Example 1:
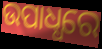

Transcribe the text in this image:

ଉପାଧ୍ଧରେ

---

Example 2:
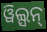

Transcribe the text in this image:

ୱିଲ୍ସନ୍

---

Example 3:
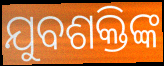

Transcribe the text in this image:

ଯୁବଶକ୍ତିଙ୍କ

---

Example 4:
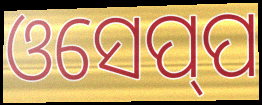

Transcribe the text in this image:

ଓସେପ୍‍ପ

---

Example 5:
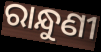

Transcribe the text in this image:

ରାନ୍ଧୁଣୀ